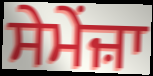
ਸੇਮੇਂਜ਼ਾ